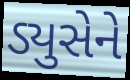
ડ્યુસેને